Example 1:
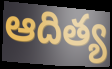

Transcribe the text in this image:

ఆదిత్య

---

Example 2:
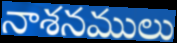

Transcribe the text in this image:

నాశనములు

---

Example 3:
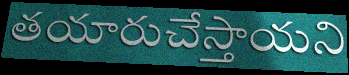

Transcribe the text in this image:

తయారుచేస్తాయని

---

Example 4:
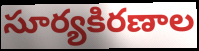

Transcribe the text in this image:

సూర్యకిరణాల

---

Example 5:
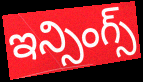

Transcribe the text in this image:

ఇన్సింగ్స్